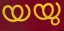
യയു